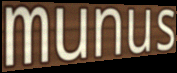
munus